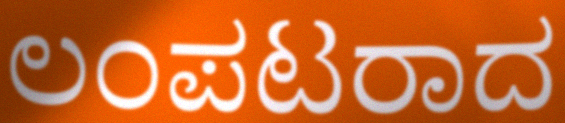
ಲಂಪಟರಾದ